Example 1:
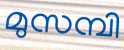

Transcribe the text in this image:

മുസമ്പി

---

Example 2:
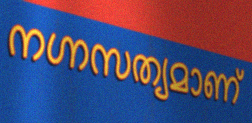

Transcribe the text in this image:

നഗ്നസത്യമാണ്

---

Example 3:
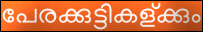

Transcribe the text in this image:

പേരക്കുട്ടികള്ക്കും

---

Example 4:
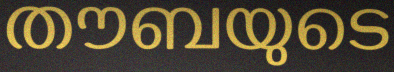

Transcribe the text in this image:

തൗബയുടെ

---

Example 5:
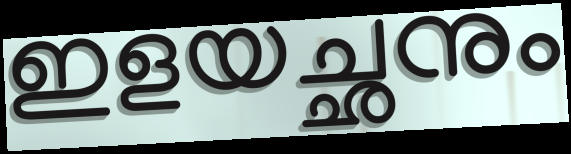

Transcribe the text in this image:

ഇളയച്ഛനും